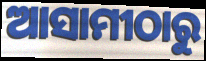
ଆସାମୀଠାରୁ